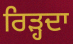
ਰਿੜ੍ਹਦਾ